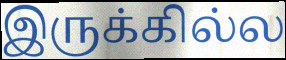
இருக்கில்ல